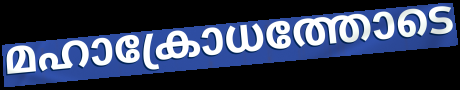
മഹാക്രോധത്തോടെ